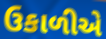
ઉકાળીએ